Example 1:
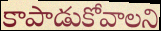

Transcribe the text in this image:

కాపాడుకోవాలని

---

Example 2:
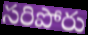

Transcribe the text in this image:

సరిపోరు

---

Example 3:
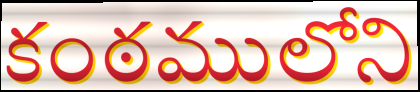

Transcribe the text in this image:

కంఠములోని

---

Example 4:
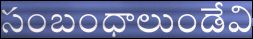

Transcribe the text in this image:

సంబంధాలుండేవి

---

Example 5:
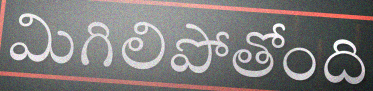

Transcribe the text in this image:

మిగిలిపోతోంది